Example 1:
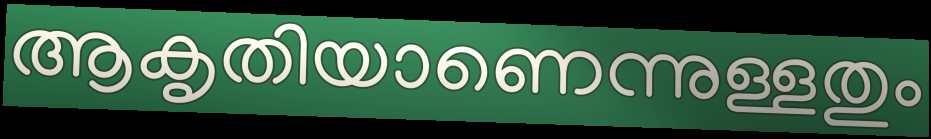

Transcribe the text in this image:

ആകൃതിയാണെന്നുള്ളതും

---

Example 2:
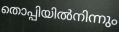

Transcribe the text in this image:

തൊപ്പിയിൽനിന്നും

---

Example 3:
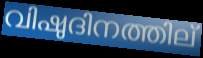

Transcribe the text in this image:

വിഷുദിനത്തില്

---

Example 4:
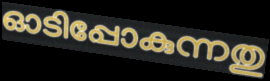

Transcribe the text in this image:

ഓടിപ്പോകുന്നതു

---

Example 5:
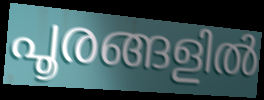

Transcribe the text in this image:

പൂരങ്ങളിൽ